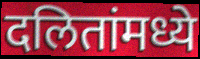
दलितांमध्ये